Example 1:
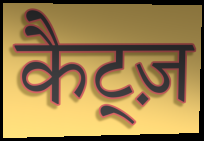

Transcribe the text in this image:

कैट्ज़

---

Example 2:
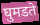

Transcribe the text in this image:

घुमडते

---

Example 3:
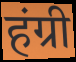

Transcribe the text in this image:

हंग्री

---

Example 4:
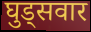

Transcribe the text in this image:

घुड्सवार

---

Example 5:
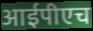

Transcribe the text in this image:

आईपीएच